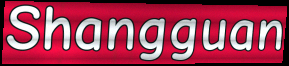
Shangguan